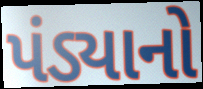
પંડ્યાનો